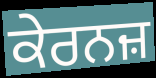
ਕੇਰਨਜ਼